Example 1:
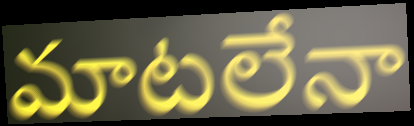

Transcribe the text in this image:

మాటలేనా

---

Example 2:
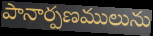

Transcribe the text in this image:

పానార్పణములును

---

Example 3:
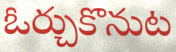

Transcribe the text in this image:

ఓర్చుకొనుట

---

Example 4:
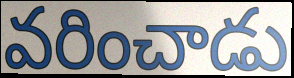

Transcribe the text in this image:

వరించాడు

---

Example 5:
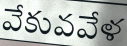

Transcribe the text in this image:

వేకువవేళ